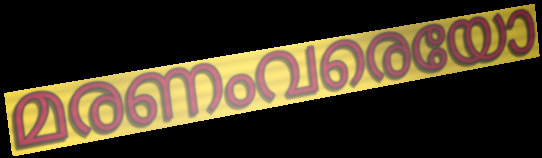
മരണംവരെയോ